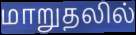
மாறுதலில்